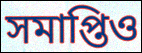
সমাপ্তিও